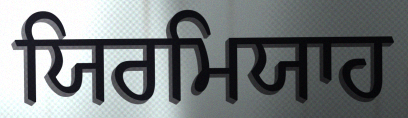
ਯਿਰਮਿਯਾਹ